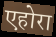
एहोरा